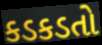
કડકડતો